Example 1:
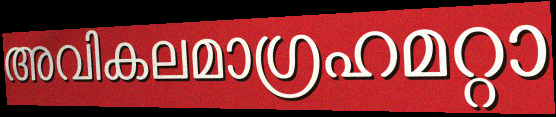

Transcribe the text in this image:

അവികലമാഗ്രഹമറ്റാ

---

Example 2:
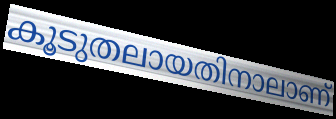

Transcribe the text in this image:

കൂടുതലായതിനാലാണ്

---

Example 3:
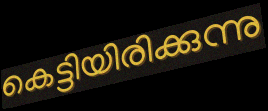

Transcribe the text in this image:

കെട്ടിയിരിക്കുന്നു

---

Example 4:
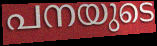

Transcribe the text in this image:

പനയുടെ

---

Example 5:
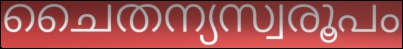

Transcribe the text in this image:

ചൈതന്യസ്വരൂപം